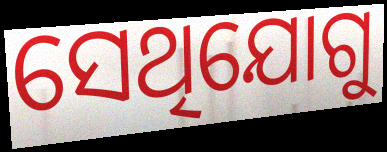
ସେଥିଯୋଗୁ